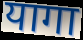
यागा